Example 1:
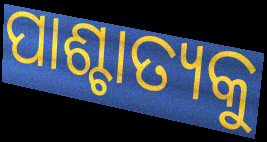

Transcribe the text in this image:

ପାଶ୍ଚାତ୍ୟକୁ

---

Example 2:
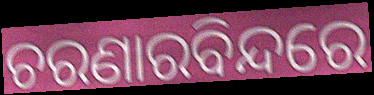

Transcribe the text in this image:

ଚରଣାରବିନ୍ଦରେ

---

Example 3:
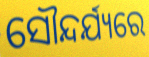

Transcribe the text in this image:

ସୌନ୍ଦର୍ଯ୍ୟରେ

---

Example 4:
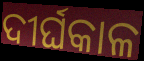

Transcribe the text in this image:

ଦୀର୍ଘକାଳ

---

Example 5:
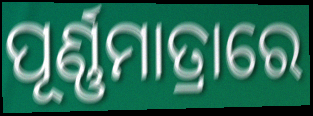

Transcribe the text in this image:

ପୂର୍ଣ୍ଣମାତ୍ରାରେ